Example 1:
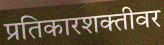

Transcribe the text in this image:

प्रतिकारशक्तीवर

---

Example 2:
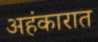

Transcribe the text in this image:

अहंकारात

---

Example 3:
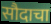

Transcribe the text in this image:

सौदाचा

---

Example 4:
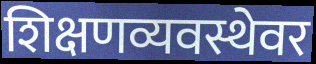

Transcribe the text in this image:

शिक्षणव्यवस्थेवर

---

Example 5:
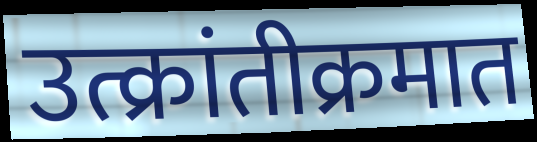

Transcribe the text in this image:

उत्क्रांतीक्रमात